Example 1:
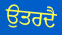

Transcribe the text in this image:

ਉਤਰਦੈ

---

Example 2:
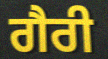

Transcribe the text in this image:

ਗੈਰੀ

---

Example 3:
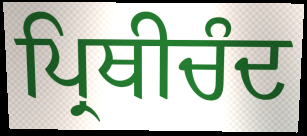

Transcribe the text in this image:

ਪ੍ਰਿਥੀਚੰਦ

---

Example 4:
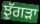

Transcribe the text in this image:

ਝੁੱਗੜਾ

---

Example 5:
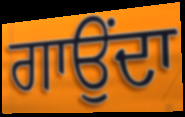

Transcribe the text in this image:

ਗਾਉਂਦਾ